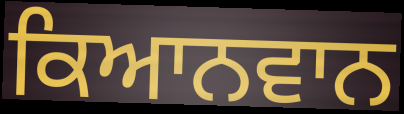
ਕਿਆਨਵਾਨ